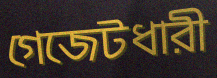
গেজেটধারী